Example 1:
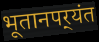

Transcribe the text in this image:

भूतानपर्यंत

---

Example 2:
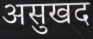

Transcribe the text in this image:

असुखद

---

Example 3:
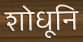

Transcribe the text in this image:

शोधूनि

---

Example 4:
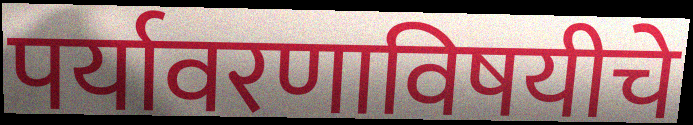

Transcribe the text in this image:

पर्यावरणाविषयीचे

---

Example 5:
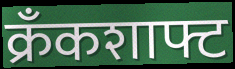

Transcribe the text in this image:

क्रँकशाफ्ट